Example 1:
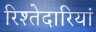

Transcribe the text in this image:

रिश्तेदारियां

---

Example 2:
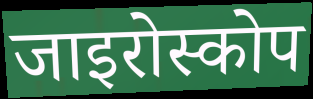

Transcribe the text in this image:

जाइरोस्कोप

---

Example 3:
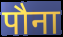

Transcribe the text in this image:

पौना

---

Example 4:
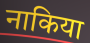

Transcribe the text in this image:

नाकिया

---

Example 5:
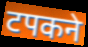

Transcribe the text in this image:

टपकने